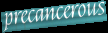
precancerous